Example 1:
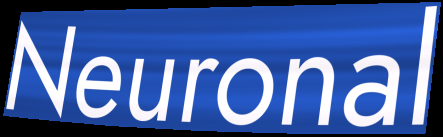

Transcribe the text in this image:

Neuronal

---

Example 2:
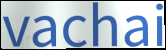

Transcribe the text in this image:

vachai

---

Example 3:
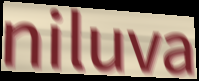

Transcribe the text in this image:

niluva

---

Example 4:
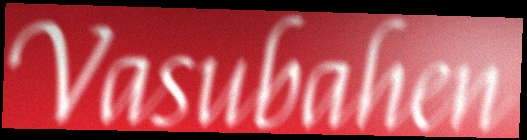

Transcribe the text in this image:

Vasubahen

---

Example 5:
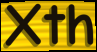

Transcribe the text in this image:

Xth